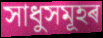
সাধুসমূহৰ